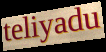
teliyadu